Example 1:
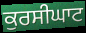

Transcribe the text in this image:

ਕੁਰਸੀਘਾਟ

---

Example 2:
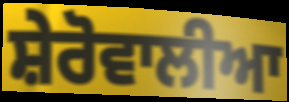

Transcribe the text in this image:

ਸ਼ੇਰੋਵਾਲੀਆ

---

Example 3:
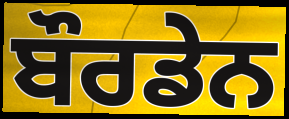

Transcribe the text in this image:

ਬੌਰਡੇਨ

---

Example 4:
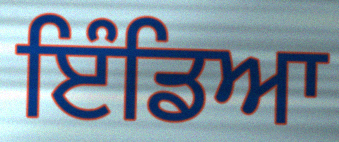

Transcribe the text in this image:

ਇੰਡਿਆ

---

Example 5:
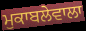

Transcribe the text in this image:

ਮੁਕਾਬਲੇਵਾਲਾ